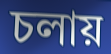
চলায়